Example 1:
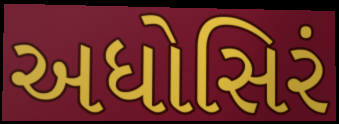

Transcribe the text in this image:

અધોસિરં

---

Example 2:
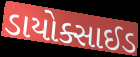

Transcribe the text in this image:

ડાયોક્સાઈડ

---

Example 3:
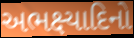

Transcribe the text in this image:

અભક્ષ્યાદિનો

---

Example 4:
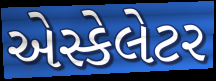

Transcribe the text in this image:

એસ્કેલેટર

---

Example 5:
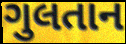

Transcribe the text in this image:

ગુલતાન